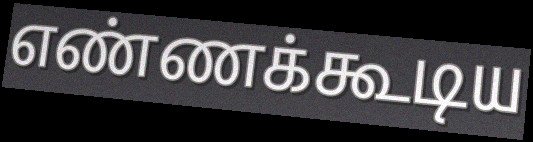
எண்ணக்கூடிய